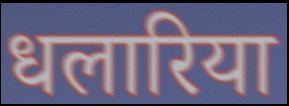
धलारिया